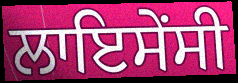
ਲਾਇਸੇਂਸੀ